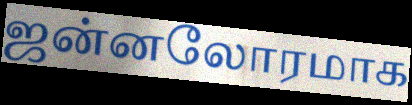
ஜன்னலோரமாக